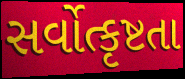
સર્વોત્કૃષ્ટતા